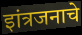
इांत्रजनाचे